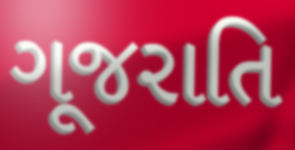
ગૂજરાતિ